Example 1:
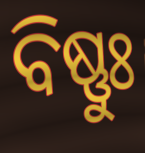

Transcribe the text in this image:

ବିଷ୍ଣୁଃ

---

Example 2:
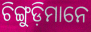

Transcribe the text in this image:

ଚିଙ୍ଗୁଡ଼ିମାନେ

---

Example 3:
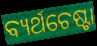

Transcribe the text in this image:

ବ୍ୟର୍ଥଚେଷ୍ଟା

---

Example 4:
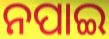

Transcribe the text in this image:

ନପାଇ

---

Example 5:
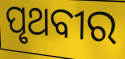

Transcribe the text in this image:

ପୃଥବୀର